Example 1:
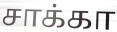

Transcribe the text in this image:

சாக்கா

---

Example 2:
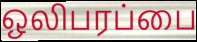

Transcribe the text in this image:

ஒலிபரப்பை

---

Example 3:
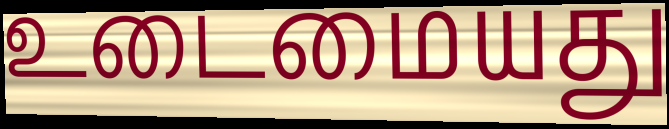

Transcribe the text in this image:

உடைமையது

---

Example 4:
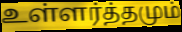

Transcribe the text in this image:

உள்ளர்த்தமும்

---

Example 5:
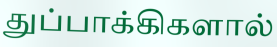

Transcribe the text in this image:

துப்பாக்கிகளால்